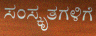
ಸಂಸ್ಕೃತಗಳಿಗೆ